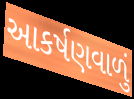
આકર્ષણવાળું